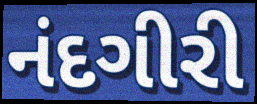
નંદગીરી